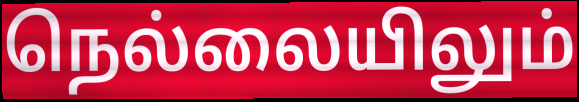
நெல்லையிலும்